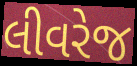
લીવરેજ